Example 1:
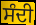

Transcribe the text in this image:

ਸੰਦੀ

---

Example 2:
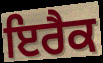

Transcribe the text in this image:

ਇਰੈਕ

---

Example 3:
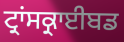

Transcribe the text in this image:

ਟ੍ਰਾਂਸਕ੍ਰਾਈਬਡ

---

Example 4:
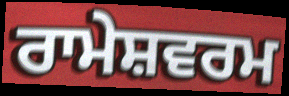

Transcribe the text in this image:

ਰਾਮੇਸ਼ਵਰਮ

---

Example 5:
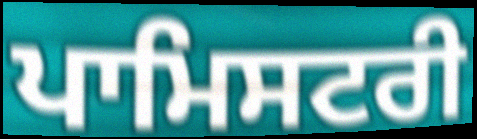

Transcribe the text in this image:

ਪਾਮਿਸਟਰੀ